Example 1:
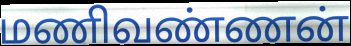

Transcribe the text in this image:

மணிவண்ணன்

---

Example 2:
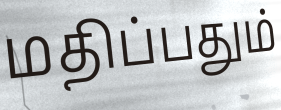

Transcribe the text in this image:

மதிப்பதும்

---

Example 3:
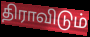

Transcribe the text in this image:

திராவிடும்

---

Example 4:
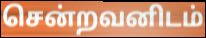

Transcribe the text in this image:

சென்றவனிடம்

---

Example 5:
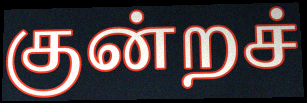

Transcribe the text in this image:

குன்றச்